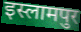
इस्लामपुर